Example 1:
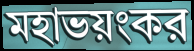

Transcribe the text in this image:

মহাভয়ংকর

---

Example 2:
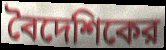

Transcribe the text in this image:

বৈদেশিকের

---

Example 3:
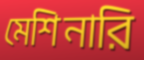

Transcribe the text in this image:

মেশিনারি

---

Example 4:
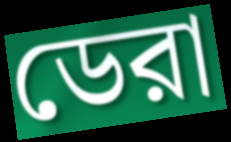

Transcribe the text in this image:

ডেরা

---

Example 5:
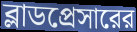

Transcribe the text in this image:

ব্লাডপ্রেসারের